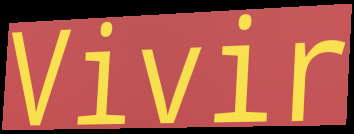
Vivir